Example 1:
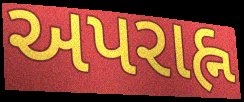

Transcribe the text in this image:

અપરાહ્ન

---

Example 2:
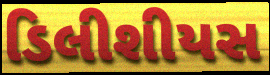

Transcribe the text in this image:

ડિલીશીયસ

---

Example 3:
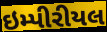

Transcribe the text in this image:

ઇમ્પીરીયલ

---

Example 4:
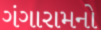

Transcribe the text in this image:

ગંગારામનો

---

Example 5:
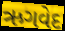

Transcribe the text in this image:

ઋગવેદ